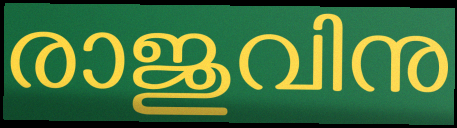
രാജുവിനു